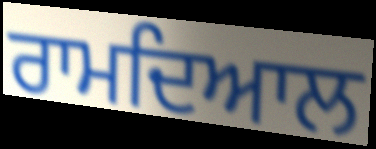
ਰਾਮਦਿਆਲ